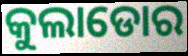
କୁଲାଡୋର